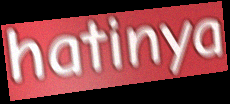
hatinya